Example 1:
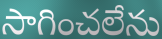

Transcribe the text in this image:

సాగించలేను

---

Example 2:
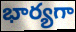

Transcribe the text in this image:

భార్యగా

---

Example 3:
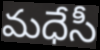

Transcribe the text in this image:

మధేసీ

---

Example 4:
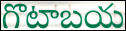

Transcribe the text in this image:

గొటాబయ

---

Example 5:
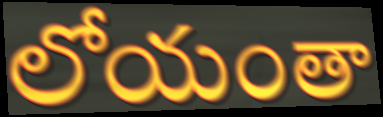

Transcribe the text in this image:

లోయంతా